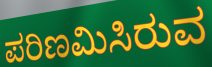
ಪರಿಣಮಿಸಿರುವ